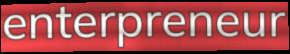
enterpreneur